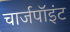
चार्जपॉइंट